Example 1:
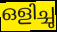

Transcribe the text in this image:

ഒളിച്ചു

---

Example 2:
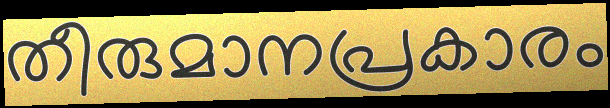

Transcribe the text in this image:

തീരുമാനപ്രകാരം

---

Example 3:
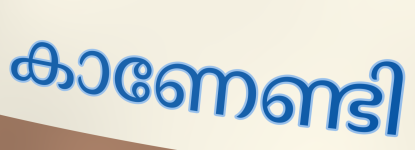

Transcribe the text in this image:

കാണേണ്ടി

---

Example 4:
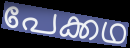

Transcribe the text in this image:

പേക്കഥ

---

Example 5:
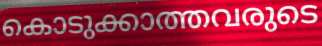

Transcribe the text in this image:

കൊടുക്കാത്തവരുടെ